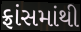
ફ્રાંસમાંથી